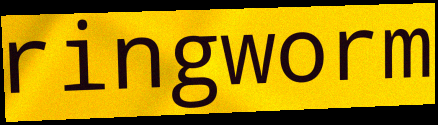
ringworm